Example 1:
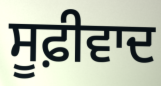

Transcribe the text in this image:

ਸੂਫ਼ੀਵਾਦ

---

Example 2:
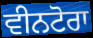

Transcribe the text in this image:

ਵੀਨਟੋਰਾ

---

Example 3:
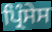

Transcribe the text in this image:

ਪ੍ਰਿੰਸੇਸ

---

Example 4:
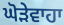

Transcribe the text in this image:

ਘੋੜੇਵਾਹਾ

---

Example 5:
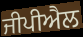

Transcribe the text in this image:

ਜੀਪੀਐਲ